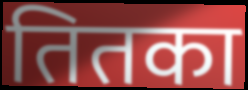
तितका